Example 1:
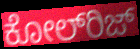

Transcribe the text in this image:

ಕೋಲ್‍ರಿಜ್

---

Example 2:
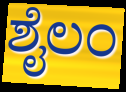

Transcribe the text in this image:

ಶೈಲಂ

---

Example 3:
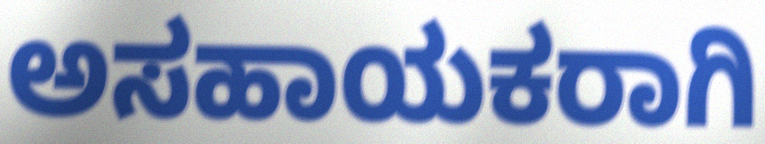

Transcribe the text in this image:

ಅಸಹಾಯಕರಾಗಿ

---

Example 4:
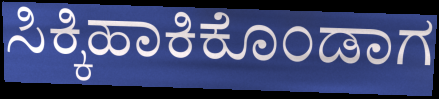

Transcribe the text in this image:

ಸಿಕ್ಕಿಹಾಕಿಕೊಂಡಾಗ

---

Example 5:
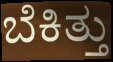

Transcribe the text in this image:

ಬೆಕಿತ್ತು